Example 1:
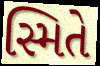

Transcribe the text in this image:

સ્મિતે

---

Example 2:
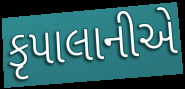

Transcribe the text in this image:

કૃપાલાનીએ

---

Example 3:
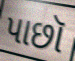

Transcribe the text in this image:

પાછૉ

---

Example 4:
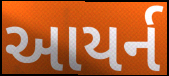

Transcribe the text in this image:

આયર્ન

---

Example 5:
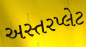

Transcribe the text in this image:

અસ્તરપ્લેટ